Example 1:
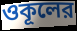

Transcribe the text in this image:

ওকূলের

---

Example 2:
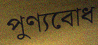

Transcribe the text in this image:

পুণ্যবোধ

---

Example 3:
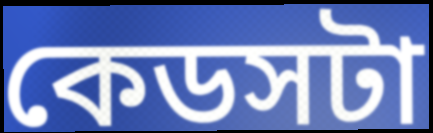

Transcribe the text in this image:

কেডসটা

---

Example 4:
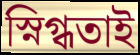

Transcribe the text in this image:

স্নিগ্ধতাই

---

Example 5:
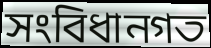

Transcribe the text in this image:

সংবিধানগত